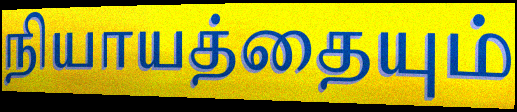
நியாயத்தையும்